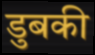
डुबकी